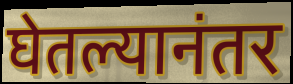
घेतल्यानंतर